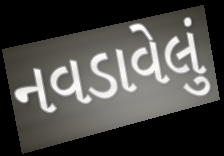
નવડાવેલું